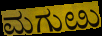
ಮಗುೞು